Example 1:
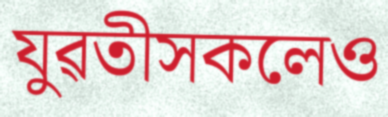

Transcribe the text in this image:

যুৱতীসকলেও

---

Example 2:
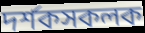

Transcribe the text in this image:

দৰ্শকসকলক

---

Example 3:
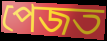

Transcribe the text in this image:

পেজত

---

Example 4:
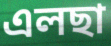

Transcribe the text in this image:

এলছা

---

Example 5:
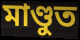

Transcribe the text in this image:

মাণ্ডুত